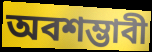
অবশম্ভাবী